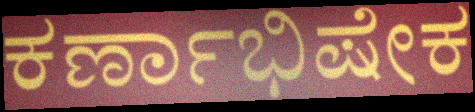
ಕರ್ಣಾಭಿಷೇಕ